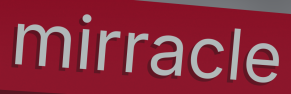
mirracle